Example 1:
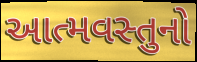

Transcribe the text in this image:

આત્મવસ્તુનો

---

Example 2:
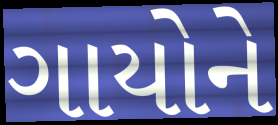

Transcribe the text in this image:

ગાયોને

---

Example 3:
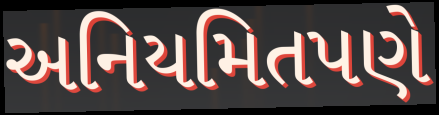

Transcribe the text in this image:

અનિયમિતપણે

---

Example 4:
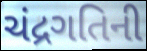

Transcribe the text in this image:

ચંદ્રગતિની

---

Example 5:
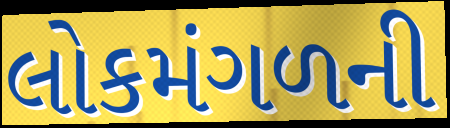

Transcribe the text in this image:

લોકમંગળની